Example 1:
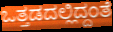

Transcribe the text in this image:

ಒತ್ತಡದಲ್ಲಿದ್ದಂತೆ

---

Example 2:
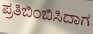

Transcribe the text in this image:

ಪ್ರತಿಬಿಂಬಿಸಿದಾಗ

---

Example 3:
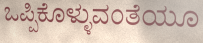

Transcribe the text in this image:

ಒಪ್ಪಿಕೊಳ್ಳುವಂತೆಯೂ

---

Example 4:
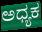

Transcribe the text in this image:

ಅಧ್ಯಕ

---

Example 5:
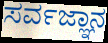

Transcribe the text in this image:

ಸರ್ವಜ್ಞಾನ